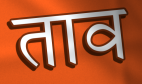
ताव